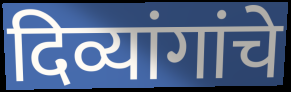
दिव्यांगांचे